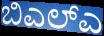
ಬಿಎಲ್ಎ